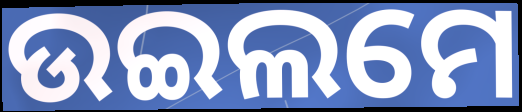
ଉଇଲମେ